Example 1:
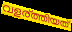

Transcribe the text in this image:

വളര്ത്തിയത്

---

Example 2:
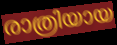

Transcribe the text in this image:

രാത്രിയായ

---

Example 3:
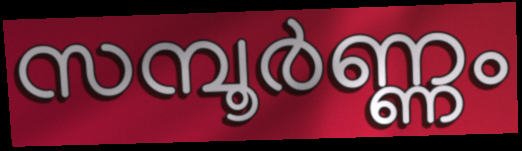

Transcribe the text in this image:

സമ്പൂർണ്ണം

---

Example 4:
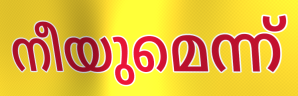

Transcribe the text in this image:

നീയുമെന്ന്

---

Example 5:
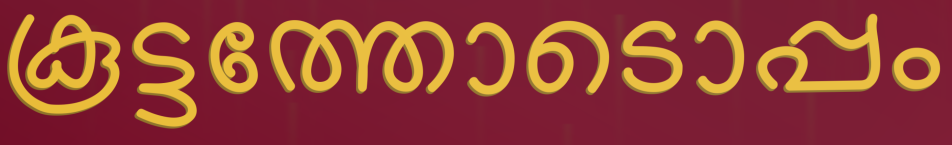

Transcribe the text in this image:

കൂട്ടത്തോടൊപ്പം